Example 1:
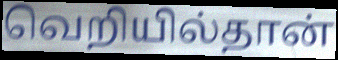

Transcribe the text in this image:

வெறியில்தான்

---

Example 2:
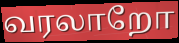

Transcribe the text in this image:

வரலாறோ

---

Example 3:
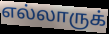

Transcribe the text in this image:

எல்லாருக்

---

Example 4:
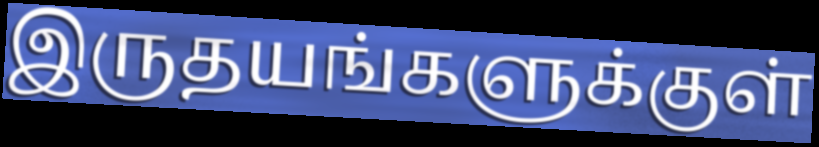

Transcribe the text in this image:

இருதயங்களுக்குள்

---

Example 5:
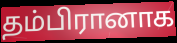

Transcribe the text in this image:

தம்பிரானாக